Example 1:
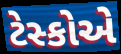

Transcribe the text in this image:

ટેસ્કોએ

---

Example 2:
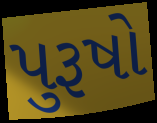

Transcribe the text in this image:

પુરૂષો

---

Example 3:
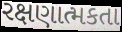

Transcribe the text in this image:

રક્ષણાત્મકતા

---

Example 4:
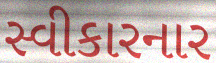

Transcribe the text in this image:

સ્વીકારનાર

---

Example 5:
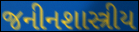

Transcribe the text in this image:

જનીનશાસ્ત્રીય